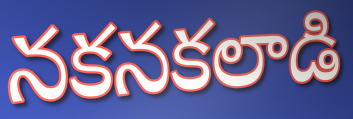
నకనకలాడి